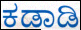
ಕಡಾಡಿ